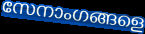
സേനാംഗങ്ങളെ